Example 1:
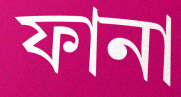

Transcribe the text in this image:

ফানা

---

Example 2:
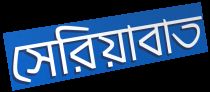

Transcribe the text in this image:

সেরিয়াবাত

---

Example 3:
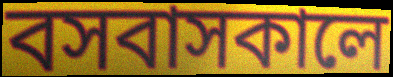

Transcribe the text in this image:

বসবাসকালে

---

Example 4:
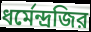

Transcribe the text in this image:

ধর্মেন্দ্রজির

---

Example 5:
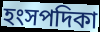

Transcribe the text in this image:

হংসপদিকা